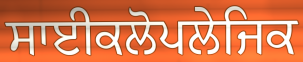
ਸਾਈਕਲੋਪਲੇਜਿਕ